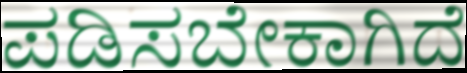
ಪಡಿಸಬೇಕಾಗಿದೆ